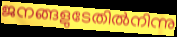
ജനങ്ങളുടേതിൽനിന്നു